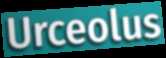
Urceolus